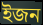
ইজন